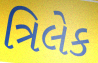
ત્રિલેક